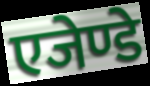
एजेण्डे